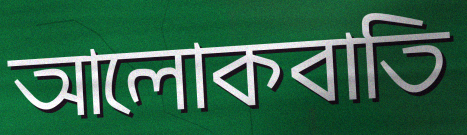
আলোকবাতি